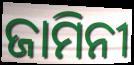
ଜାମିନୀ